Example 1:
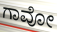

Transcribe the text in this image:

ಗಾವೋ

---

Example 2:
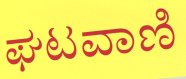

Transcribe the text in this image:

ಘಟವಾಣಿ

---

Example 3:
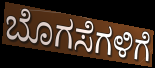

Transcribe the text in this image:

ಬೊಗಸೆಗಳಿಗೆ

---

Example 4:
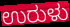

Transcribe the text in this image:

ಉರುಳು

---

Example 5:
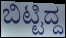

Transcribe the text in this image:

ಬಿಟ್ಟಿದ್ದ